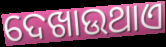
ଦେଖାଉଥାଏ